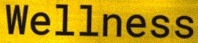
Wellness